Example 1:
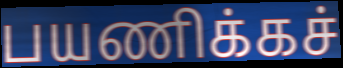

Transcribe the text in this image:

பயணிக்கச்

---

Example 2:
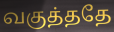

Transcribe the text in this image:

வகுத்ததே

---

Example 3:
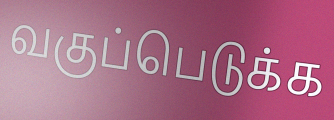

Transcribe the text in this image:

வகுப்பெடுக்க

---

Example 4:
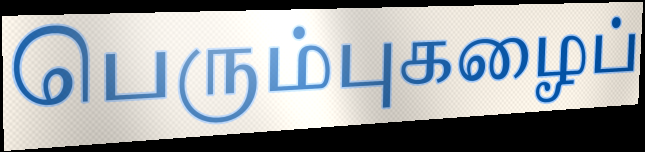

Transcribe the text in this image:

பெரும்புகழைப்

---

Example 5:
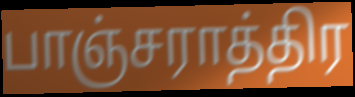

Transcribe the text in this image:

பாஞ்சராத்திர